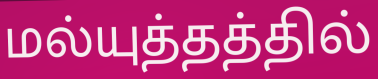
மல்யுத்தத்தில்